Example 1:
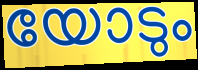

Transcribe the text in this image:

യോടും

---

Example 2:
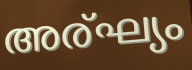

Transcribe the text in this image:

അര്ഘ്യം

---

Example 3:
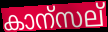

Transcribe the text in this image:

കാന്സല്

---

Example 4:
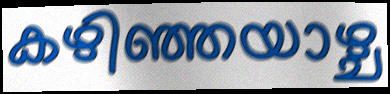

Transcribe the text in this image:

കഴിഞ്ഞയാഴ്ച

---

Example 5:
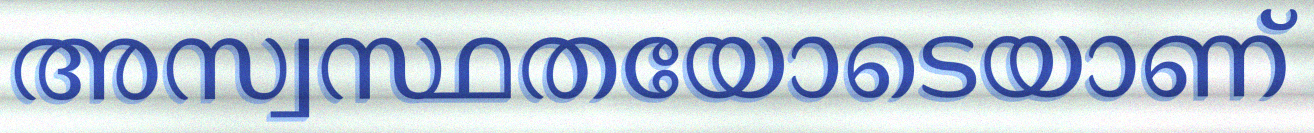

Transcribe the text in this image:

അസ്വസ്ഥതയോടെയാണ്